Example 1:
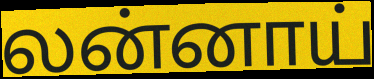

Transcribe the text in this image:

லன்னாய்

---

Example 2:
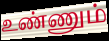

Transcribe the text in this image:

உண்ணும்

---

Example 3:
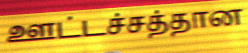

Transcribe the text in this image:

ஊட்டச்சத்தான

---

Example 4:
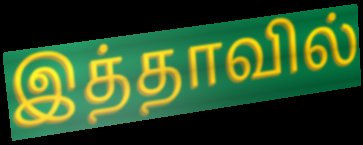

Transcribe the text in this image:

இத்தாவில்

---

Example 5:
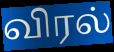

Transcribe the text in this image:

விரல்